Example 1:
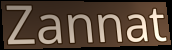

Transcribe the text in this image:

Zannat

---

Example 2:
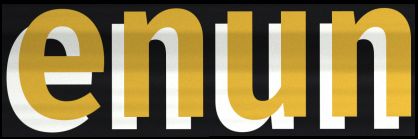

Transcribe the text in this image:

enun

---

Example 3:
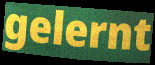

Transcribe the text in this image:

gelernt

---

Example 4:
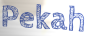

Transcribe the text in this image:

Pekah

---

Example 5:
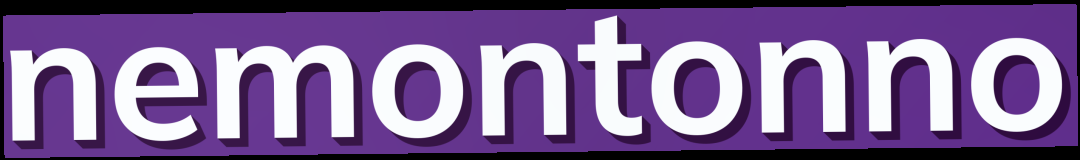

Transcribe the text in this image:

nemontonno